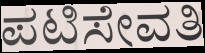
ಪಟಿಸೇವತಿ